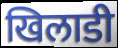
खिलाडी